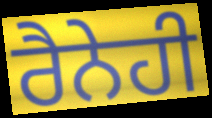
ਰੈਨੇਹੀ